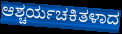
ಆಶ್ಚರ್ಯಚಕಿತಳಾದ